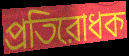
প্রতিরোধক